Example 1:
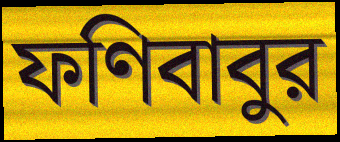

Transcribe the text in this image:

ফণিবাবুর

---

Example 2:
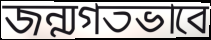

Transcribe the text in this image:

জন্মগতভাবে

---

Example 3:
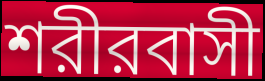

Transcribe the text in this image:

শরীরবাসী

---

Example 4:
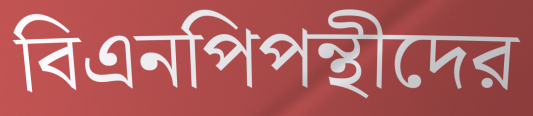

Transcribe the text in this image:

বিএনপিপন্থীদের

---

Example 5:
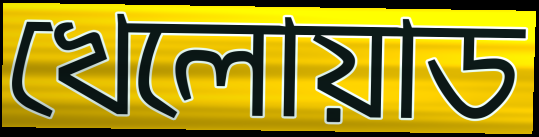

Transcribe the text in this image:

খেলোয়াড